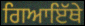
ਗਿਆਇੱਥੇ